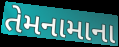
તેમનામાના